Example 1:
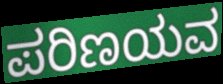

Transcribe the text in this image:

ಪರಿಣಯವ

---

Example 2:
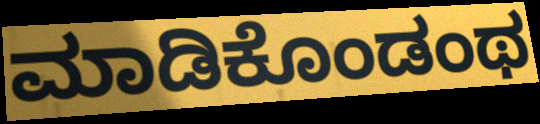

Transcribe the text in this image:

ಮಾಡಿಕೊಂಡಂಥ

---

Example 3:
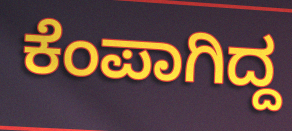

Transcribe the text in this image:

ಕೆಂಪಾಗಿದ್ದ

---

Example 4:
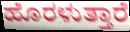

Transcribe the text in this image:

ಹೊರಳುತ್ತಾರೆ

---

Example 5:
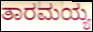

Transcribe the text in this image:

ತಾರಮಯ್ಯ